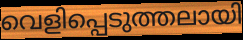
വെളിപ്പെടുത്തലായി